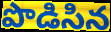
పొడిసిన